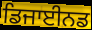
ਡਿਜਾਈਨਡ